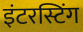
इंटरस्टिंग